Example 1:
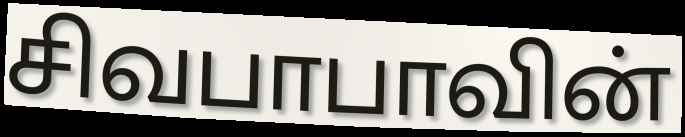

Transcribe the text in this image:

சிவபாபாவின்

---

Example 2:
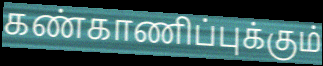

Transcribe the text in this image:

கண்காணிப்புக்கும்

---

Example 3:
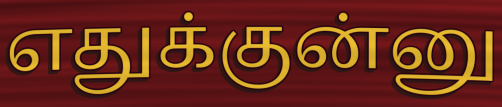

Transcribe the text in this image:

எதுக்குன்னு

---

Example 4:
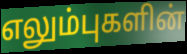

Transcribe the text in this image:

எலும்புகளின்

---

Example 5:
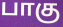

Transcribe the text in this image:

பாகு